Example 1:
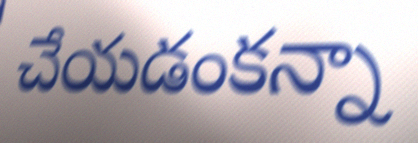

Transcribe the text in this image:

చేయడంకన్నా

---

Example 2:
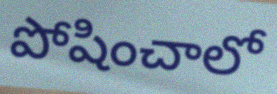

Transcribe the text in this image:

పోషించాలో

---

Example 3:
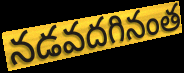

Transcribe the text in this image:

నడవదగినంత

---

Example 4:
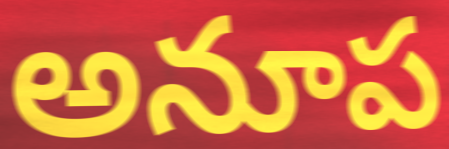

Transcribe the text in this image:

అనూప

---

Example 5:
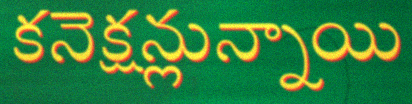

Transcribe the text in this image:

కనెక్షన్లున్నాయి